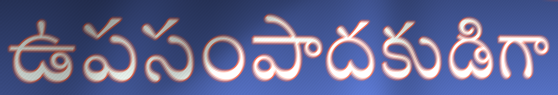
ఉపసంపాదకుడిగా